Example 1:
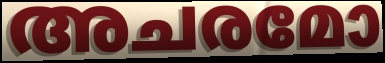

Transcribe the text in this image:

അചരമോ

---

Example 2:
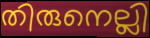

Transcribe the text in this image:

തിരുനെല്ലി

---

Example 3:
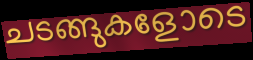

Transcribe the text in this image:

ചടങ്ങുകളോടെ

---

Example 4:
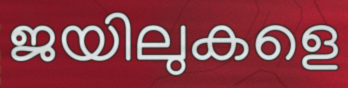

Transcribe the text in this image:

ജയിലുകളെ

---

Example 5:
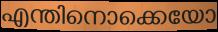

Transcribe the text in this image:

എന്തിനൊക്കെയോ